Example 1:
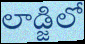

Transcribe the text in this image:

లాడ్జిలో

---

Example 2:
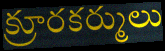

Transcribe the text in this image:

క్రూరకర్ములు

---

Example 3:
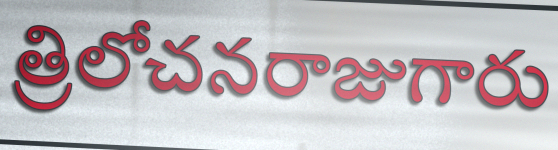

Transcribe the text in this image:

త్రిలోచనరాజుగారు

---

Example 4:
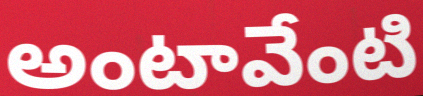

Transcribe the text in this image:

అంటావేంటి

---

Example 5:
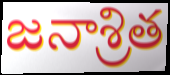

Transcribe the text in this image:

జనాశ్రిత